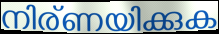
നിര്ണയിക്കുക